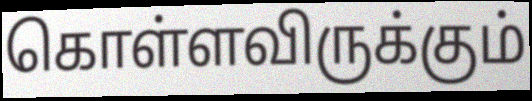
கொள்ளவிருக்கும்